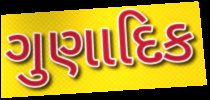
ગુણાદિક